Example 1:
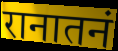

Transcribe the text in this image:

रानातनं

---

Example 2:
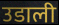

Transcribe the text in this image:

उडाली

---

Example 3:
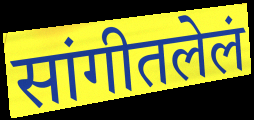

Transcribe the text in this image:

सांगीतलेलं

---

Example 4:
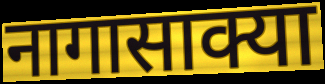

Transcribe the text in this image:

नागासाक्या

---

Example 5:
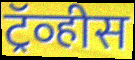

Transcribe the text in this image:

ट्रॅव्हीस